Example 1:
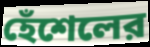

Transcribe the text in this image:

হেঁশেলের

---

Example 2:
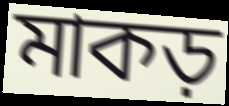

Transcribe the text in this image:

মাকড়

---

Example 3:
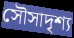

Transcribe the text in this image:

সৌসাদৃশ্য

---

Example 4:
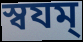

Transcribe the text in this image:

স্বযম্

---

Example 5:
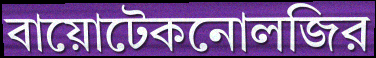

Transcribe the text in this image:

বায়োটেকনোলজির